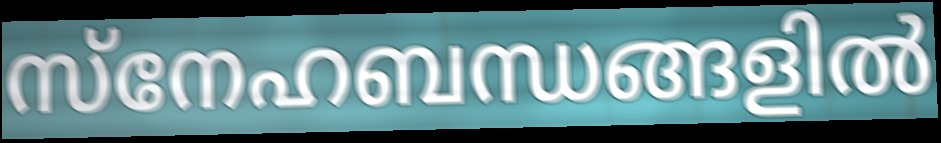
സ്നേഹബന്ധങ്ങളിൽ